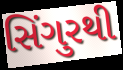
સિંગુરથી